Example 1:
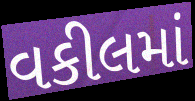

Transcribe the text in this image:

વકીલમાં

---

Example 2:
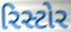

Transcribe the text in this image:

રિસ્ટોર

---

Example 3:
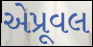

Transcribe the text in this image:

એપ્રૂવલ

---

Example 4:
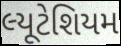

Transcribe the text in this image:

લ્યૂટેશિયમ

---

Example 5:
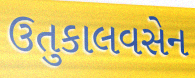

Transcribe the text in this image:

ઉતુકાલવસેન